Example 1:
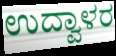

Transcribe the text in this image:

ಉದ್ವಾಳರ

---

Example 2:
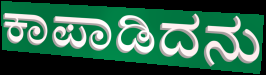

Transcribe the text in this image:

ಕಾಪಾಡಿದನು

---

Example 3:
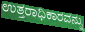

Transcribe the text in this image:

ಉತ್ತರಾಧಿಕಾರವನ್ನು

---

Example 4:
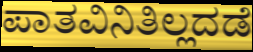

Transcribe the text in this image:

ಪಾತವಿನಿತಿಲ್ಲದಡೆ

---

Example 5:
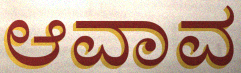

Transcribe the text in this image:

ಆವಾವ